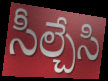
సీల్చేసి